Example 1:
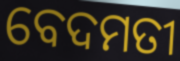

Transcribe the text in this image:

ବେଦମତୀ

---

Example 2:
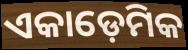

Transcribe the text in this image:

ଏକାଡ଼େମିକ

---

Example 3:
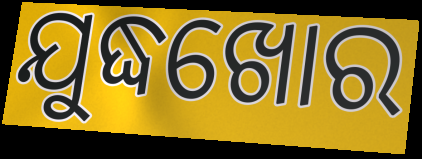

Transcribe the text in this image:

ଯୁଦ୍ଧଖୋର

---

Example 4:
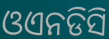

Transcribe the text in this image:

ଓଏନଡିସି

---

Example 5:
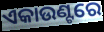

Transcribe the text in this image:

ଏକାଉଣ୍ଟରେ